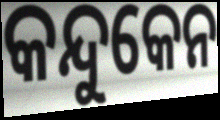
କନ୍ଦୁକେନ